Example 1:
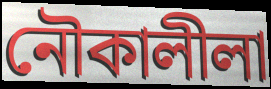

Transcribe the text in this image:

নৌকালীলা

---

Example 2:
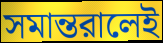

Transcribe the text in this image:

সমান্তরালেই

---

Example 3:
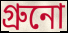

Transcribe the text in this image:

গ্রুনো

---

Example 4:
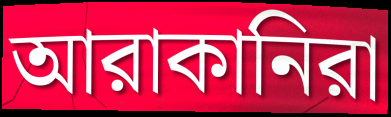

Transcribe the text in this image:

আরাকানিরা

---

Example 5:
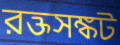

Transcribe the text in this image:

রক্তসঙ্কট